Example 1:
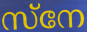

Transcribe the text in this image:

സ്നേ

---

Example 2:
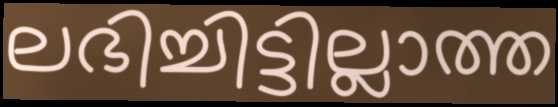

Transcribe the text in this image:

ലഭിച്ചിട്ടില്ലാത്ത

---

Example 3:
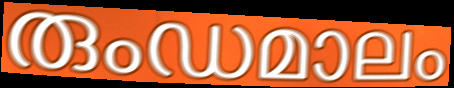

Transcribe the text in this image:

രുംഡമാലം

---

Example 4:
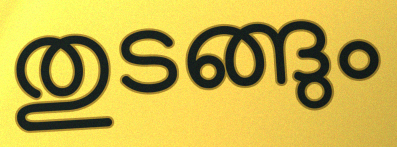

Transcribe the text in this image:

തുടങ്ങും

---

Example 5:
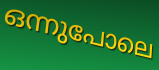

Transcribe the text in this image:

ഒന്നുപോലെ